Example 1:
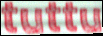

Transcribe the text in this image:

tuttu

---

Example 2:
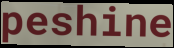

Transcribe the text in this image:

peshine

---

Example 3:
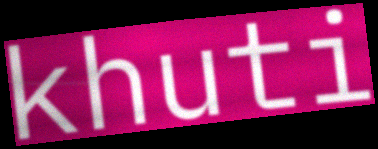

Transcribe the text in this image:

khuti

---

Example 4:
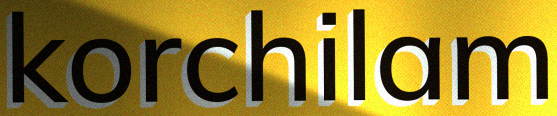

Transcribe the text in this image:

korchilam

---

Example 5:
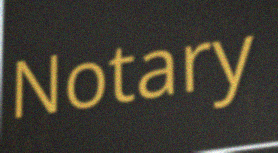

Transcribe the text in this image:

Notary